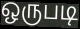
ஒருபடி